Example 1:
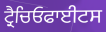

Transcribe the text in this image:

ਟ੍ਰੈਚਿਓਫਾਈਟਸ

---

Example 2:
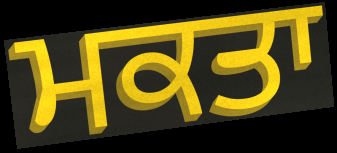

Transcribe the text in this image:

ਮਕਤਾ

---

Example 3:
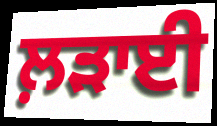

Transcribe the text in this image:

ਲ਼ੜਾਈ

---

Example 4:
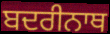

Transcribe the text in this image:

ਬਦਰੀਨਾਥ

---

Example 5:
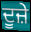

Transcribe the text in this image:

ਦੂਜ਼ੇ